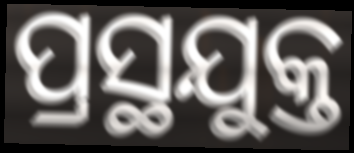
ପ୍ରସ୍ଥଯୁକ୍ତ